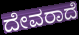
ದೇವರಾದೆ